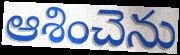
ఆశించెను